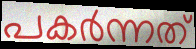
പകർന്നത്